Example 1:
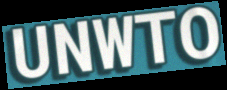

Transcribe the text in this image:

UNWTO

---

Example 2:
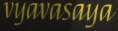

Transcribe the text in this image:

vyavasaya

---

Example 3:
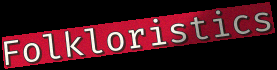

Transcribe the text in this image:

Folkloristics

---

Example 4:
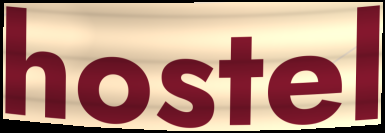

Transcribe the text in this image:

hostel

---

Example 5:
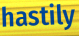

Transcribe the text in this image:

hastily